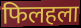
फिलहला